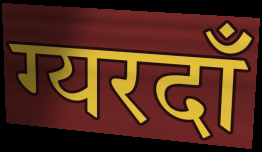
ग्यरदाँ